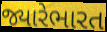
જ્યારેભારત